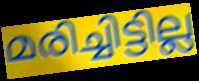
മരിച്ചിട്ടില്ല